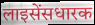
लाइसेंसधारक